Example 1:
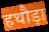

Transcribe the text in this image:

हथौड़ा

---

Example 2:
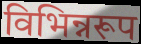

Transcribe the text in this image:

विभिन्नरूप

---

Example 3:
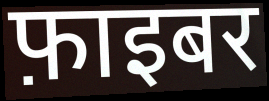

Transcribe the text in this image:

फ़ाइबर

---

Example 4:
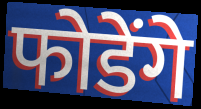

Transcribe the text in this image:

फोडेंगे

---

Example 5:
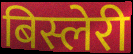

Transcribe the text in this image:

बिस्लेरी